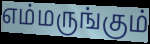
எம்மருங்கும்